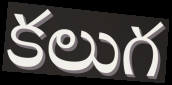
కలుగ